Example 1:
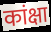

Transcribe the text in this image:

कांक्षा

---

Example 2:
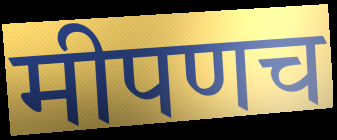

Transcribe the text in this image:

मीपणच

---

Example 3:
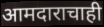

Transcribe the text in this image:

आमदाराचाही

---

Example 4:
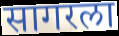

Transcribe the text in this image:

सागरला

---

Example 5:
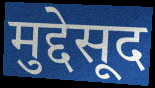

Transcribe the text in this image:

मुद्देसूद